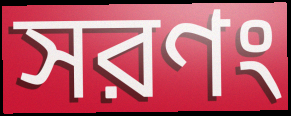
সরণং